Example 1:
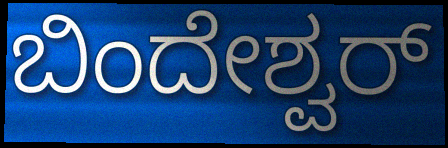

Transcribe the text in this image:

ಬಿಂದೇಶ್ವರ್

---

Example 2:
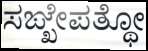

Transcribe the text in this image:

ಸಙ್ಖೇಪತ್ಥೋ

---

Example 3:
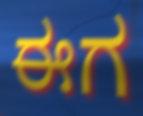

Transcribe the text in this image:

ಈಗ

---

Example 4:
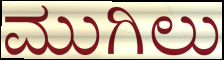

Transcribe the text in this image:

ಮುಗಿಲು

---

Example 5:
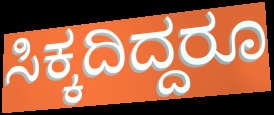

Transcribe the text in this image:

ಸಿಕ್ಕದಿದ್ದರೂ